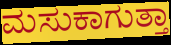
ಮಸುಕಾಗುತ್ತಾ